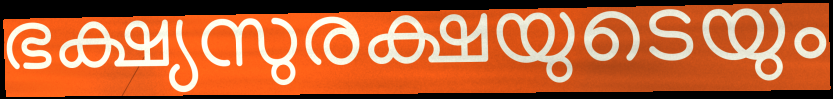
ഭക്ഷ്യസുരക്ഷയുടെയും